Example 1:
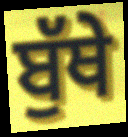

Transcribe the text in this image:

ਬੁੱਥੇ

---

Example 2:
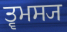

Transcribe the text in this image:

ਤ੍ਵਮਸ੍ਯ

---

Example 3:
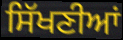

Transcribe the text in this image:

ਸਿੱਖਣੀਆਂ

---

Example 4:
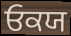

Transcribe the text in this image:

ਓਕਯ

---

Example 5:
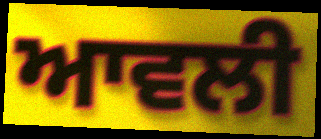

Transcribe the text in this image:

ਆਵਲੀ